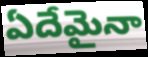
ఏదేమైనా